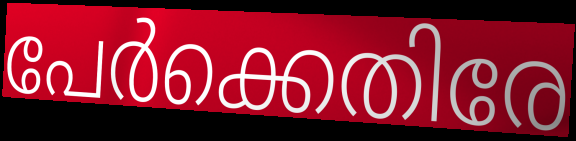
പേർക്കെതിരേ